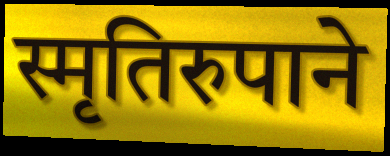
स्मृतिरुपाने